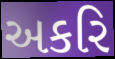
અકરિ